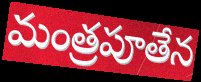
మంత్రపూతేన